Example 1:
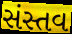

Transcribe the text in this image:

સંસ્તવ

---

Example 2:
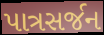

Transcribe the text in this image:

પાત્રસર્જન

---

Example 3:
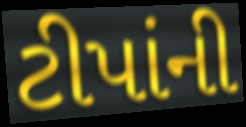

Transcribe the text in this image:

ટીપાંની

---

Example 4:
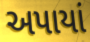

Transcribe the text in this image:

અપાયાં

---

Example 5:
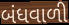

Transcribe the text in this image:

બંધવાળી